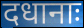
दधानाः